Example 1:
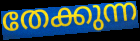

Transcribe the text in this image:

തേക്കുന്ന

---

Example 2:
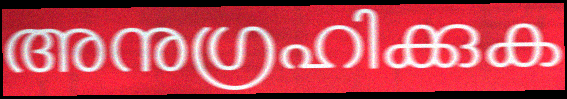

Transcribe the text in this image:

അനുഗ്രഹിക്കുക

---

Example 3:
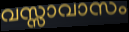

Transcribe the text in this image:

വസ്സാവാസം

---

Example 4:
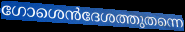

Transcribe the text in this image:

ഗോശെൻദേശത്തുതന്നെ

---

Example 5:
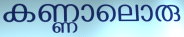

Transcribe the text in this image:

കണ്ണാലൊരു